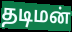
தடிமன்